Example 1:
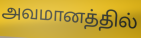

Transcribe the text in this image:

அவமானத்தில்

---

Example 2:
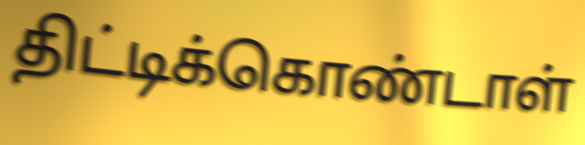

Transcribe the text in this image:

திட்டிக்கொண்டாள்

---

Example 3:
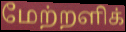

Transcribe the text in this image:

மேற்றளிக்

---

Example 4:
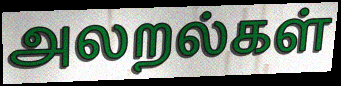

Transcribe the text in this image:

அலறல்கள்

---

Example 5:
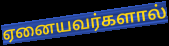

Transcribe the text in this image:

ஏனையவர்களால்